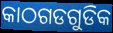
କାଠଗଡଗୁଡିକ